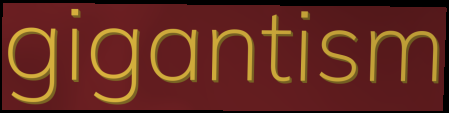
gigantism